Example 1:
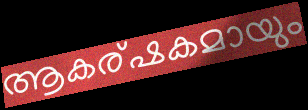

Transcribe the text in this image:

ആകര്ഷകമായും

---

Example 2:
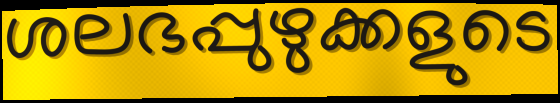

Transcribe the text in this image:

ശലഭപ്പുഴുക്കളുടെ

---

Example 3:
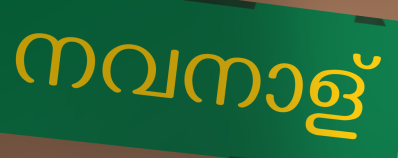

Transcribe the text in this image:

നവനാള്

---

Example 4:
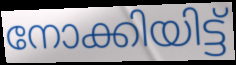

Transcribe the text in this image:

നോക്കിയിട്ട്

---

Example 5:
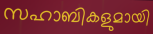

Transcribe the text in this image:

സഹാബികളുമായി